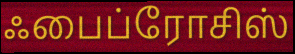
ஃபைப்ரோசிஸ்